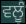
ਵਲੂੰ